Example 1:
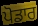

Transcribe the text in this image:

ਪੋਡਾਰ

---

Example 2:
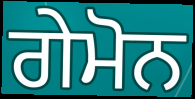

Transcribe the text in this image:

ਗੇਮੋਨ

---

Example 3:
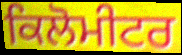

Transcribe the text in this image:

ਕਿਲੋਮੀਟਰ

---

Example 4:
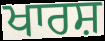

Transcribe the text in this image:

ਖਾਰਸ਼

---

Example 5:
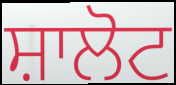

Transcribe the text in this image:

ਸ਼ਾਲੋਟ